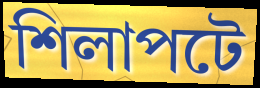
শিলাপটে